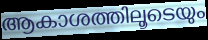
ആകാശത്തിലൂടെയും